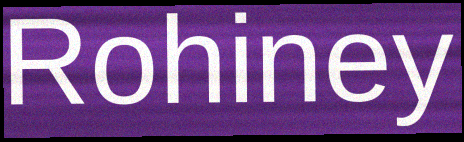
Rohiney